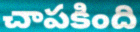
చాపకింది